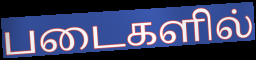
படைகளில்